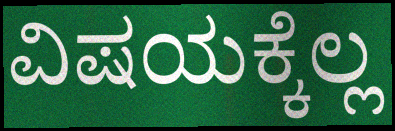
ವಿಷಯಕ್ಕೆಲ್ಲ